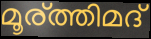
മൂര്ത്തിമദ്